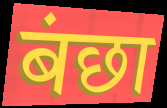
बंछा